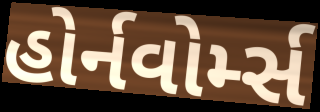
હોર્નવોર્મ્સ